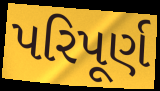
પરિપૂર્ણ